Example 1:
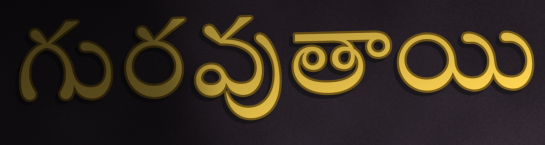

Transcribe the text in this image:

గురవుతాయి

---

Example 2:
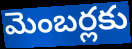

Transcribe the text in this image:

మెంబర్లకు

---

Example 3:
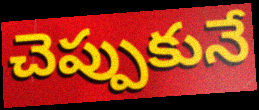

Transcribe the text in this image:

చెప్పుకునే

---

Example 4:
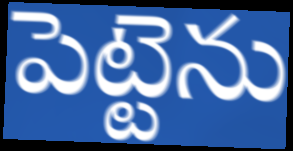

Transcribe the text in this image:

పెట్టెను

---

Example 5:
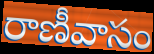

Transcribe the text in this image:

రాణీవాసం